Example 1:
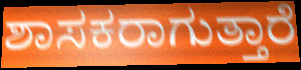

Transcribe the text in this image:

ಶಾಸಕರಾಗುತ್ತಾರೆ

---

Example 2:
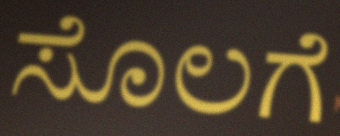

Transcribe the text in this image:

ಸೊಲಗೆ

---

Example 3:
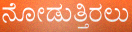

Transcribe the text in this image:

ನೋಡುತ್ತಿರಲು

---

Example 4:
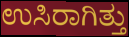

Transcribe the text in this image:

ಉಸಿರಾಗಿತ್ತು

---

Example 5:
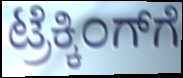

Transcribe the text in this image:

ಟ್ರೆಕ್ಕಿಂಗ್‌ಗೆ